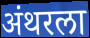
अंथरला